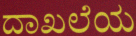
ದಾಖಲೆಯ